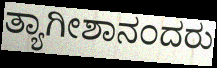
ತ್ಯಾಗೀಶಾನಂದರು